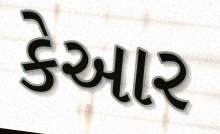
કેઆર